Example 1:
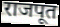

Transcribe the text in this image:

राजपूत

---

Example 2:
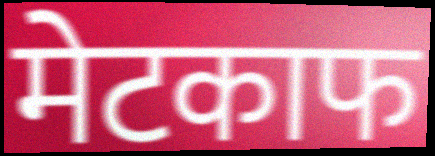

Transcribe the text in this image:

मेटकाफ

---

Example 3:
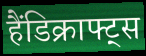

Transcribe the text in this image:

हैंडिक्राफ्ट्स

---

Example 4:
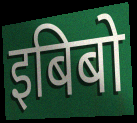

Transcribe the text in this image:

इबिबो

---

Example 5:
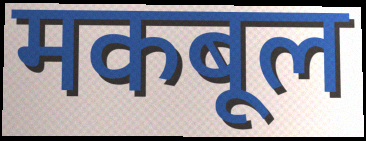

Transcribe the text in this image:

मकबूल